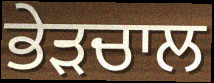
ਭੇੜਚਾਲ